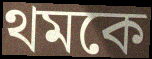
থমকে